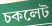
চকলেট